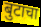
बुटाचा